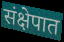
संक्षेपात